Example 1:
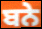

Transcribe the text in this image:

ਬਨੇ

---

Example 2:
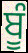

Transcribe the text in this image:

ਬੂੰ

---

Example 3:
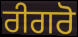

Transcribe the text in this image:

ਰੀਗਰੋ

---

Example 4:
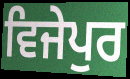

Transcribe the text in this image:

ਵਿਜੇਪੁਰ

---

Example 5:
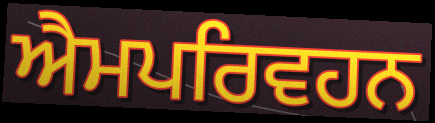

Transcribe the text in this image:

ਐਮਪਰਿਵਹਨ